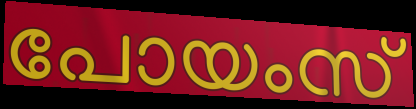
പോയംസ്